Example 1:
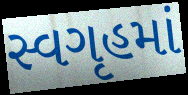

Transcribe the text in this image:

સ્વગૃહમાં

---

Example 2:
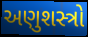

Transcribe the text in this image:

અણુશસ્ત્રો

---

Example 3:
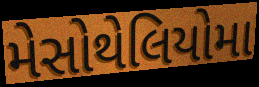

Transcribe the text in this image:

મેસોથેલિયોમા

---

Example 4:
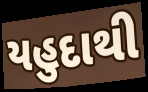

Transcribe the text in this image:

યહુદાથી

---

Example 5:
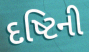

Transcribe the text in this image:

દષ્ટિની